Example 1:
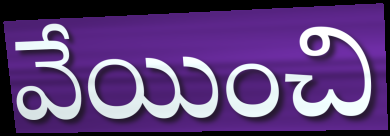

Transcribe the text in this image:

వేయించి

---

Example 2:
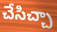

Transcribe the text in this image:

చేసిచ్చా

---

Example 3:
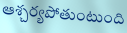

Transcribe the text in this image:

ఆశ్చర్యపోతుంటుంది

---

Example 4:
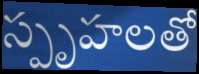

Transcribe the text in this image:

స్పృహలతో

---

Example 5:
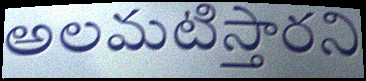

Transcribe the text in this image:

అలమటిస్తారని